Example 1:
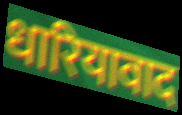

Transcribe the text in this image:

धारियावाद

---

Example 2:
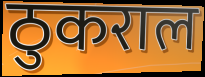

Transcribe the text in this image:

ठुकराल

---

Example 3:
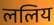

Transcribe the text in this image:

ललिय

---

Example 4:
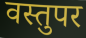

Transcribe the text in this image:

वस्तुपर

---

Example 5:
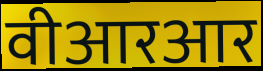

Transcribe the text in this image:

वीआरआर